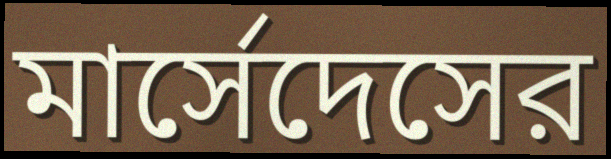
মার্সেদেসের